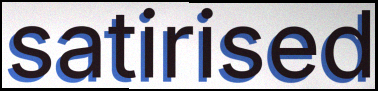
satirised